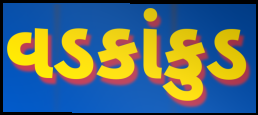
વડકાંકુડ